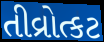
તીવ્રોત્કટ